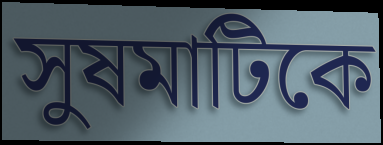
সুষমাটিকে